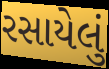
રસાયેલું